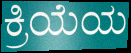
ಕ್ರಿಯೆಯ